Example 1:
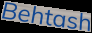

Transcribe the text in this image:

Behtash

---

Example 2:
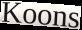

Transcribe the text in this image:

Koons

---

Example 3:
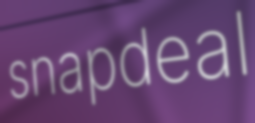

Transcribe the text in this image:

snapdeal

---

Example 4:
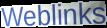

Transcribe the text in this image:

Weblinks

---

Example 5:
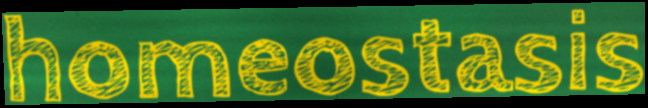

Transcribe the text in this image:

homeostasis